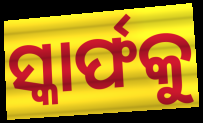
ସ୍କାର୍ଫକୁ